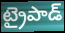
ట్రైపాడ్